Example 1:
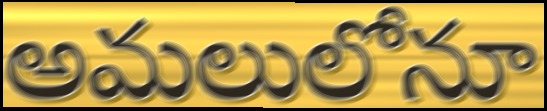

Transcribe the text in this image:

అమలులోనూ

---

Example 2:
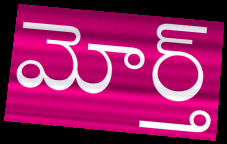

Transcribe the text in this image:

మోర్త్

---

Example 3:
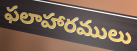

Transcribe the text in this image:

ఫలాహారములు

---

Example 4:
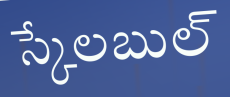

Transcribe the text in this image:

స్కేలబుల్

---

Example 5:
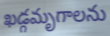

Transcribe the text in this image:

ఖడ్గమృగాలను